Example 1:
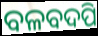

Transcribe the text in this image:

ବଳବଦପି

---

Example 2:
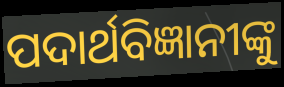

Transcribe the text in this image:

ପଦାର୍ଥବିଜ୍ଞାନୀଙ୍କୁ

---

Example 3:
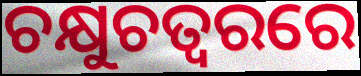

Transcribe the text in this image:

ଚକ୍ଷୁଚତ୍ୱରରେ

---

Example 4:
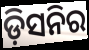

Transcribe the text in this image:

ଡ଼ିସନିର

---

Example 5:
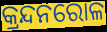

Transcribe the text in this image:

କ୍ରନ୍ଦନରୋଳ